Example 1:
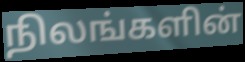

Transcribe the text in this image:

நிலங்களின்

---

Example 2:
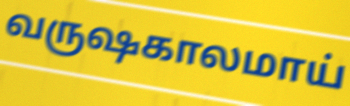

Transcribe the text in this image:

வருஷகாலமாய்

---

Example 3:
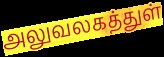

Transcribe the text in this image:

அலுவலகத்துள்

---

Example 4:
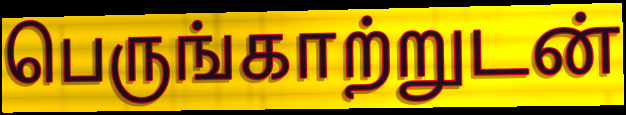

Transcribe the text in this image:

பெருங்காற்றுடன்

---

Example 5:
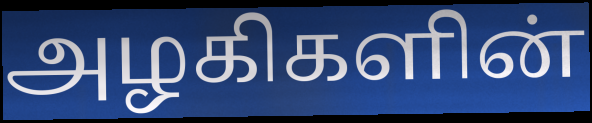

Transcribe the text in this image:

அழகிகளின்